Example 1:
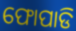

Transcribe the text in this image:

ଫୋପାଡି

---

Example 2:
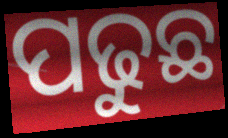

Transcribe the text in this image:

ପଢୁଛ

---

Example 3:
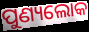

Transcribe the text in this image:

ପୁଣ୍ୟଲୋକ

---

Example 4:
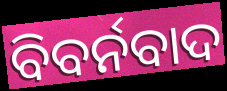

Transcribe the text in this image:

ବିବର୍ନବାଦ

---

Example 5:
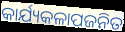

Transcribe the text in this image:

କାର୍ଯ୍ୟକଳାପଜନିତ